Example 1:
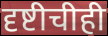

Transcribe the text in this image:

दृष्टीचीही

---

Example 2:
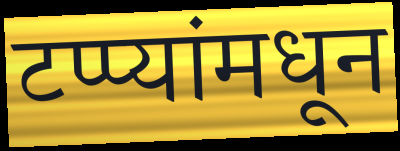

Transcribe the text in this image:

टप्प्यांमधून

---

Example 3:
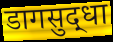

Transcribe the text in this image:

डागसुद्धा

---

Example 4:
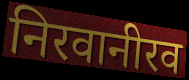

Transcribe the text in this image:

निरवानीरव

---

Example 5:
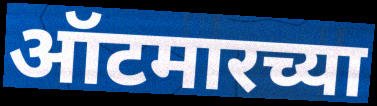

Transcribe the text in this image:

ऑटमारच्या